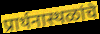
प्रार्थनास्थळांचे